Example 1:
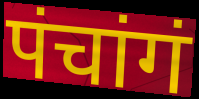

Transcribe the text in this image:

पंचांगं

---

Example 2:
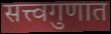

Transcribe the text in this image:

सत्त्वगुणात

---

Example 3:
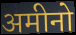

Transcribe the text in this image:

अमीनो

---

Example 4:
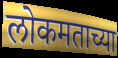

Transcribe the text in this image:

लोकमताच्या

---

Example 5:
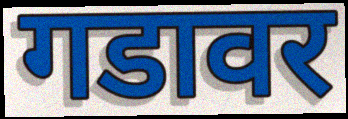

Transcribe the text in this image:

गडावर